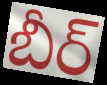
బీర్